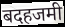
बदहजमी